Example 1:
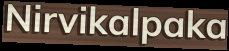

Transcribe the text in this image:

Nirvikalpaka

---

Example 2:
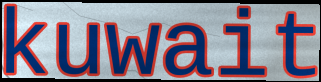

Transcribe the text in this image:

kuwait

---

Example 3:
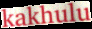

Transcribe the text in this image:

kakhulu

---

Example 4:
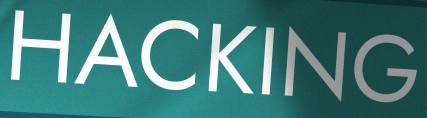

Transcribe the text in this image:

HACKING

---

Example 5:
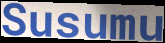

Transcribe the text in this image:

Susumu